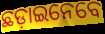
ଛଡ଼ାଇନେବେ